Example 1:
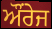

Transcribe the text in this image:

ਔਂਰੇਜ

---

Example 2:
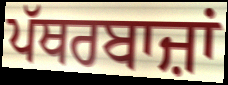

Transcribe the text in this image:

ਪੱਥਰਬਾਜ਼ਾਂ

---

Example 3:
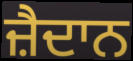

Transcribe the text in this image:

ਜ਼ੈਦਾਨ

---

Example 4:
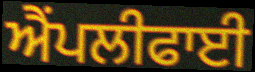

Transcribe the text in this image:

ਐਂਪਲੀਫਾਈ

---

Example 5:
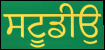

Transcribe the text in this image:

ਸਟੂਡੀਉ